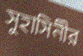
সুহাসিনীর